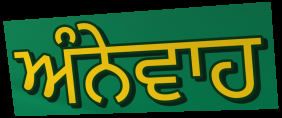
ਅੰਨੇਵਾਹ